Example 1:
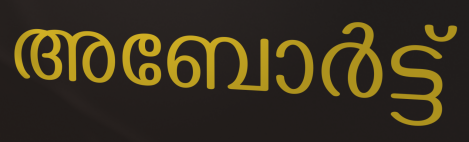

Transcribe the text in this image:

അബോർട്ട്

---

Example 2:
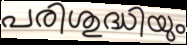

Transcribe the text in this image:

പരിശുദ്ധിയും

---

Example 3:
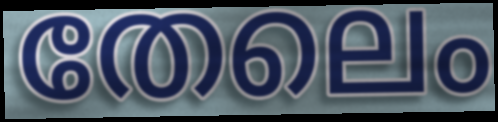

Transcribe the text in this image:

തേലെം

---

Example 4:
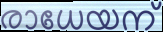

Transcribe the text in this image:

രാധേയന്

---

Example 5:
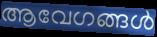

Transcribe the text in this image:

ആവേഗങ്ങൾ